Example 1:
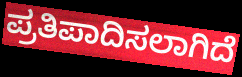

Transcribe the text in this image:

ಪ್ರತಿಪಾದಿಸಲಾಗಿದೆ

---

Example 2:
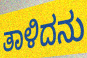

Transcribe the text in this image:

ತಾಳಿದನು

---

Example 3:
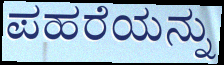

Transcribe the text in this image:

ಪಹರೆಯನ್ನು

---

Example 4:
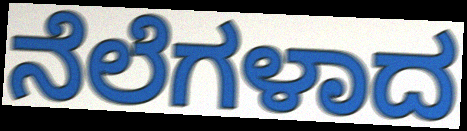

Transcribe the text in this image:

ನೆಲೆಗಳಾದ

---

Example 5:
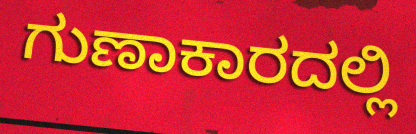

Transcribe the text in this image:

ಗುಣಾಕಾರದಲ್ಲಿ